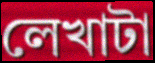
লেখাটা